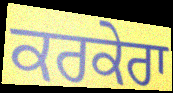
ਕਰਕੇਰਾ